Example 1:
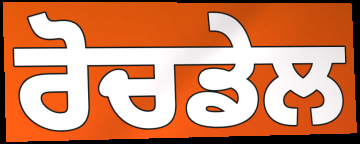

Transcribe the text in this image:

ਰੋਚਡੇਲ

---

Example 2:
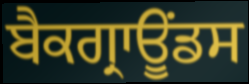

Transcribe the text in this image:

ਬੈਕਗ੍ਰਾਊਂਡਸ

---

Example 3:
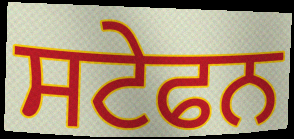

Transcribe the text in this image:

ਸਟੇਫਨ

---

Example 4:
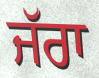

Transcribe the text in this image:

ਜੱਰਾ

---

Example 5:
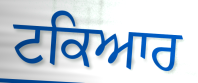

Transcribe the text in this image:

ਟਕਿਆਰ